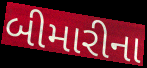
બીમારીના